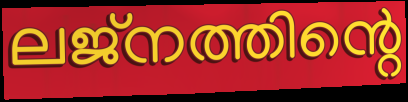
ലജ്നത്തിന്റെ